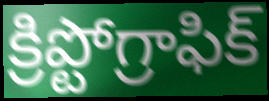
క్రిప్టోగ్రాఫిక్